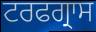
ਟਰਫਗ੍ਰਾਸ